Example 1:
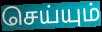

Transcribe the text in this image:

செய்யும்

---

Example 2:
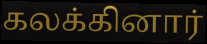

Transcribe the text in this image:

கலக்கினார்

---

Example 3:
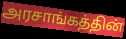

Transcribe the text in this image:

அரசாங்கத்தின்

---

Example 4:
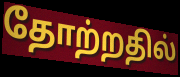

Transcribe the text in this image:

தோற்றதில்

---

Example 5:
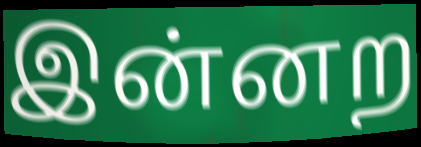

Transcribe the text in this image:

இன்னற